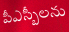
పీఎస్బీలను